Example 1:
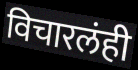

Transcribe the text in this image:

विचारलंही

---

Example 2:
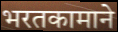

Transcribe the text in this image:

भरतकामाने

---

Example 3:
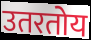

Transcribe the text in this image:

उतरतोय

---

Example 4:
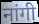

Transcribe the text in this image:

नांगी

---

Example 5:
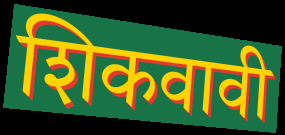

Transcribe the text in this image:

शिकवावी